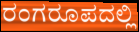
ರಂಗರೂಪದಲ್ಲಿ